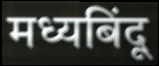
मध्यबिंदू